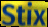
Stix